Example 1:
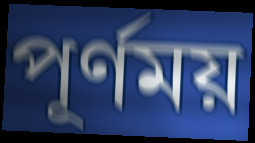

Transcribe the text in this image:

পূর্ণময়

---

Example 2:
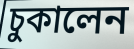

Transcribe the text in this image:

চুকালেন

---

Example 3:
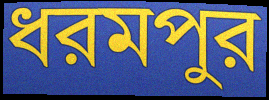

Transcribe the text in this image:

ধরমপুর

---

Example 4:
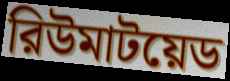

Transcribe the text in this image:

রিউমাটয়েড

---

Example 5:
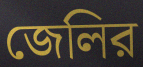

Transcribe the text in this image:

জেলির